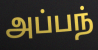
அப்பந்